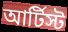
আর্টিস্ট